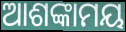
ଆଶଙ୍କାମୟ